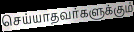
செய்யாதவர்களுக்கும்